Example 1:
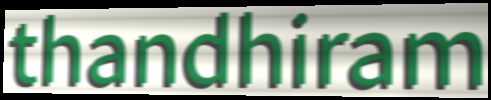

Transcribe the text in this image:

thandhiram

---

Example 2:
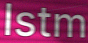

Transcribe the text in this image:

lstm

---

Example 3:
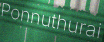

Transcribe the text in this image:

Ponnuthurai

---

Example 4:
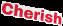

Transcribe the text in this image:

Cherish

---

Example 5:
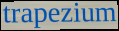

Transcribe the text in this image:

trapezium